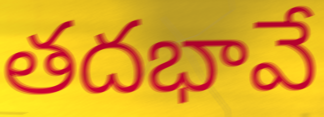
తదభావే